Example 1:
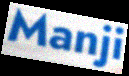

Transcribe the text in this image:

Manji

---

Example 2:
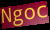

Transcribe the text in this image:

Ngoc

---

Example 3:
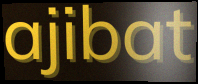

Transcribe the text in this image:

ajibat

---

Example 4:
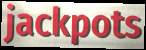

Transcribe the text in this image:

jackpots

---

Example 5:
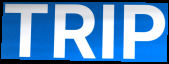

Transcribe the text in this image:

TRIP